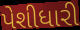
પેશીધારી